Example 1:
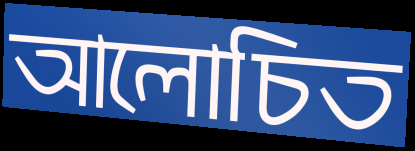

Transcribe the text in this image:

আলোচিত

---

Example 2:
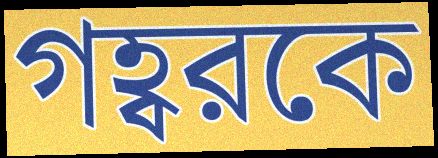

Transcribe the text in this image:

গহ্বরকে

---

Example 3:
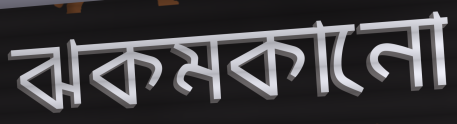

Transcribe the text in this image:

ঝকমকানো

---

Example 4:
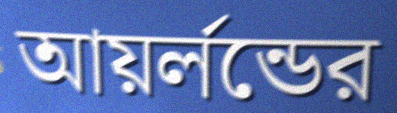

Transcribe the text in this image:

আয়র্লন্ডের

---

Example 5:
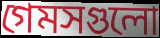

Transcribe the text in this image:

গেমসগুলো